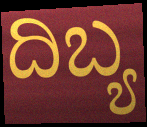
ದಿಬ್ಯ